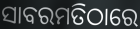
ସାବରମତିଠାରେ